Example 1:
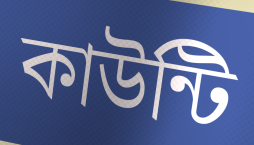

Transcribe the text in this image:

কাউন্টি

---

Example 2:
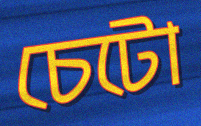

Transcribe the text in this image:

চেটো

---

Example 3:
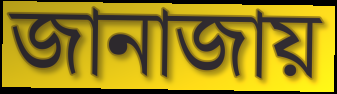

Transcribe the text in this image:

জানাজায়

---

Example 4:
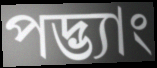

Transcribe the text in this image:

পদ্ভ্যাং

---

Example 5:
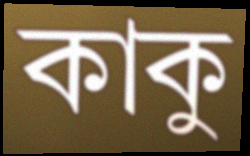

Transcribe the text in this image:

কাকু